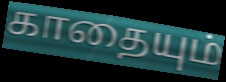
காதையும்